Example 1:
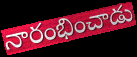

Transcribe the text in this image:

నారంభించాడు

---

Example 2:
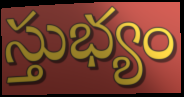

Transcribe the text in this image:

స్తుభ్యం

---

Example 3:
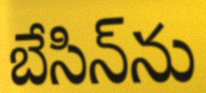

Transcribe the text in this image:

బేసిన్‌ను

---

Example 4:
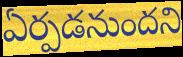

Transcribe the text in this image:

ఏర్పడనుందని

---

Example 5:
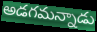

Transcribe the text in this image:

అడగమన్నాడు